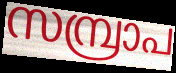
സമ്പ്രാപ